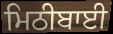
ਮਿਠੀਬਾਈ